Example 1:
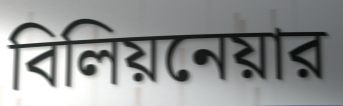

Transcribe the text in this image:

বিলিয়নেয়ার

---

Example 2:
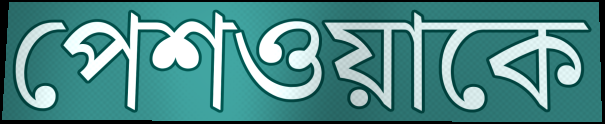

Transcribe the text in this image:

পেশওয়াকে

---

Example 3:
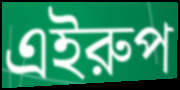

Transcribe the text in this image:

এইরুপ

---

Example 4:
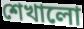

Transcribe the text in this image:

শেখালো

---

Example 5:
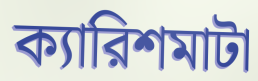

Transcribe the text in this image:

ক্যারিশমাটা